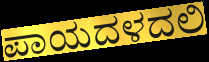
ಪಾಯದಳದಲಿ